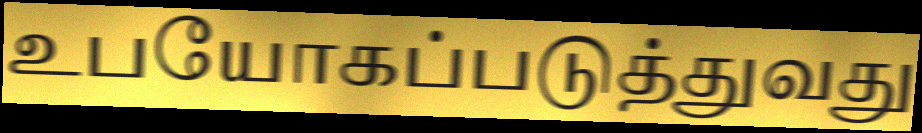
உபயோகப்படுத்துவது